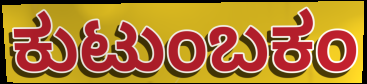
ಕುಟುಂಬಕಂ